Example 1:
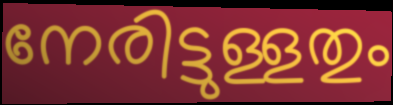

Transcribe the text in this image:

നേരിട്ടുള്ളതും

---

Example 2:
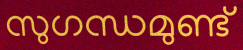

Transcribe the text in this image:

സുഗന്ധമുണ്ട്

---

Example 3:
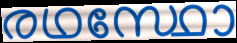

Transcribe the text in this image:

രഥസ്ഥോ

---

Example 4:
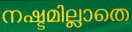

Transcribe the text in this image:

നഷ്ടമില്ലാതെ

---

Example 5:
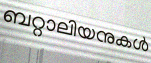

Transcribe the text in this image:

ബറ്റാലിയനുകൾ